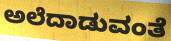
ಅಲೆದಾಡುವಂತೆ